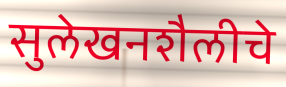
सुलेखनशैलीचे